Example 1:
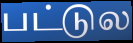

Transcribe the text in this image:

பட்டுல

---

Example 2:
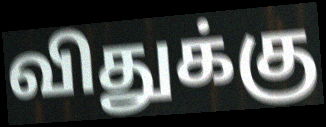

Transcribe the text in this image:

விதுக்கு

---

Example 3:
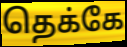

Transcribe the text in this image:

தெக்கே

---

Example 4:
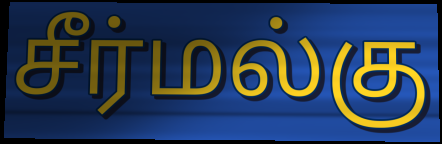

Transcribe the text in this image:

சீர்மல்கு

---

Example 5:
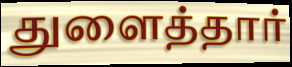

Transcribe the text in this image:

துளைத்தார்